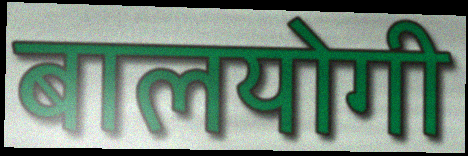
बालयोगी